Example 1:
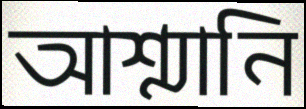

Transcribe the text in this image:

আশ্মানি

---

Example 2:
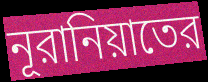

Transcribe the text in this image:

নূরানিয়াতের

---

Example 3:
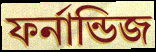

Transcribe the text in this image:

ফর্নান্ডিজ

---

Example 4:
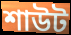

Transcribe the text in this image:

শাউট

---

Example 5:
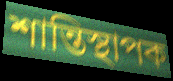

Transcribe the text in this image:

শান্তিস্থাপক